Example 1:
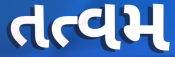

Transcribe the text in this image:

તત્વમ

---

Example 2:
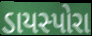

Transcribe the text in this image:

ડાયસ્પોરા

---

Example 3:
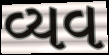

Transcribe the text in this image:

વ્યવ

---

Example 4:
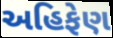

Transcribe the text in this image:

અહિફેણ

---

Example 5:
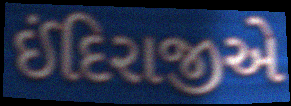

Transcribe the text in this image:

ઈંદિરાજીએ